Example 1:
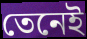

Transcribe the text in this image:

তেনেই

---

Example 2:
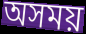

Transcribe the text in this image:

অসময়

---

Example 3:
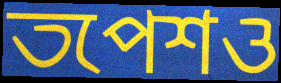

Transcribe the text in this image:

তপেশও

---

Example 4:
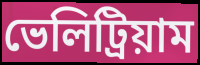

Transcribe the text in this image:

ভেলিট্রিয়াম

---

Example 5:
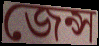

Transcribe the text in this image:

জেন্স